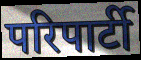
परिपार्टी